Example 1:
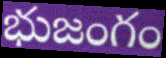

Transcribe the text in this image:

భుజంగం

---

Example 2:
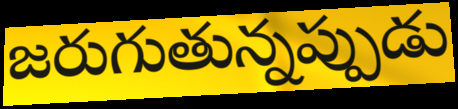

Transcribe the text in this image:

జరుగుతున్నప్పుడు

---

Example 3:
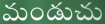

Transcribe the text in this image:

మండుచు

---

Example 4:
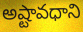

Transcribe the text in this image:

అష్టావధాని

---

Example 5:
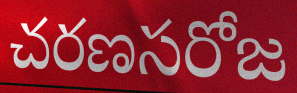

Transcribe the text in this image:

చరణసరోజ